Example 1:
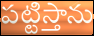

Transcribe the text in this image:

పట్టిస్తాను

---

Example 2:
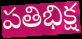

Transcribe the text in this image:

పతిభిక్ష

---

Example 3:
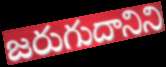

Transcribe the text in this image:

జరుగుదానిని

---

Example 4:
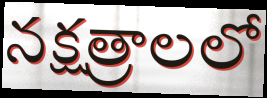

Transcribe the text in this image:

నక్షత్రాలలో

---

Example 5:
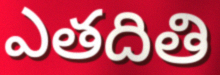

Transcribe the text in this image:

ఎతదితి